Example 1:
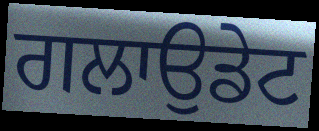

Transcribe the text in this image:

ਗਲਾਉਡੇਟ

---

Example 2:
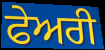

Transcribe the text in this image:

ਫੇਅਰੀ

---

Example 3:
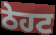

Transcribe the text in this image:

ਠੇਹਟ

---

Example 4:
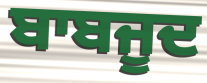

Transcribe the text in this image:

ਬਾਬਜੂਦ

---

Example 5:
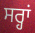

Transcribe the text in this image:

ਸਰ੍ਹਾਂ